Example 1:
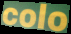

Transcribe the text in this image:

colo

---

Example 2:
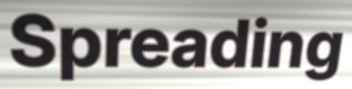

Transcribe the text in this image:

Spreading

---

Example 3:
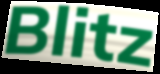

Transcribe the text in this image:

Blitz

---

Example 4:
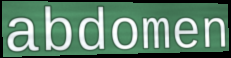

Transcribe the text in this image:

abdomen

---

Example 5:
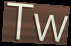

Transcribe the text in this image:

Tw